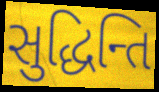
સુદ્ધિન્તિ